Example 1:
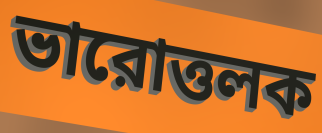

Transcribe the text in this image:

ভারোত্তলক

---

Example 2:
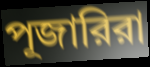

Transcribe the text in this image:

পূজারিরা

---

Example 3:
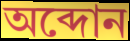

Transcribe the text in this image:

অব্দোন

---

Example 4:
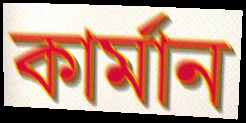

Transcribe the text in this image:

কার্মান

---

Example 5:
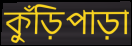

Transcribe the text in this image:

কুঁড়িপাড়া